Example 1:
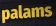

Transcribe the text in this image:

palams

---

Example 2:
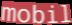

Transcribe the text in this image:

mobil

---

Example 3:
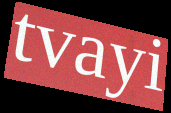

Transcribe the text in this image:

tvayi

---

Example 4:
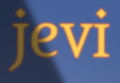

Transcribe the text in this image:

jevi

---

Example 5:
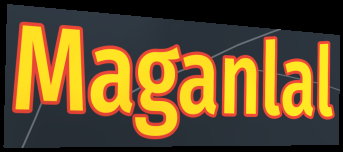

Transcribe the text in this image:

Maganlal